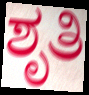
ಶೃತಿ